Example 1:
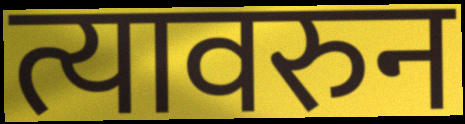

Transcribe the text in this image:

त्यावरुन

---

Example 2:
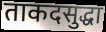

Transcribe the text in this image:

ताकदसुद्धा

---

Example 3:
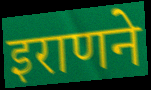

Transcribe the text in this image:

इराणने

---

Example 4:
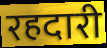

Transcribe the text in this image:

रहदारी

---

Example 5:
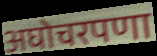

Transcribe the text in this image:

अघोचरपणा